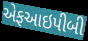
એફઆઇપીબી